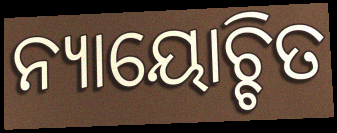
ନ୍ୟାୟୋଚ୍ଚିତ